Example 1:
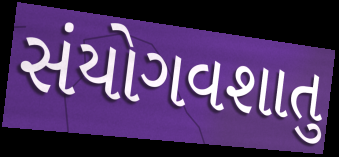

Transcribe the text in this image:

સંયોગવશાતુ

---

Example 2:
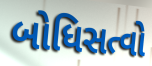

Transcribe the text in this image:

બોધિસત્વો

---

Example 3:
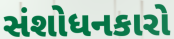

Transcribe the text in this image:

સંશોધનકારો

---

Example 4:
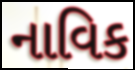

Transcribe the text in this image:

નાવિક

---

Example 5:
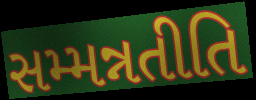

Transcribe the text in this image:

સમ્મન્નતીતિ